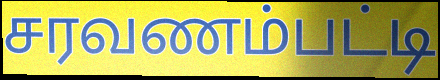
சரவணம்பட்டி